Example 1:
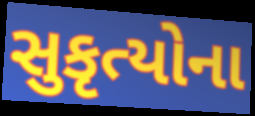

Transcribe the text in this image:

સુકૃત્યોના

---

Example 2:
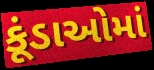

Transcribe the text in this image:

કૂંડાઓમાં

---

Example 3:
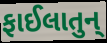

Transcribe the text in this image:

ફાઈલાતુન્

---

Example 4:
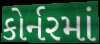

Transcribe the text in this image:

કોર્નરમાં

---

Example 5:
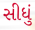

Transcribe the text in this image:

સીધું